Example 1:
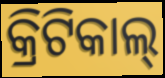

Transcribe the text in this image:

କ୍ରିଟିକାଲ୍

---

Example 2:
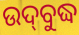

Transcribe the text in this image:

ଉଦ୍‌ବୁଦ୍ଧ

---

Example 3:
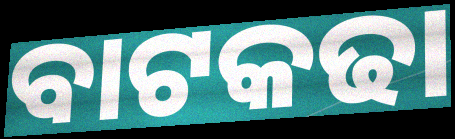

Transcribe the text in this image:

ବାଟକଢା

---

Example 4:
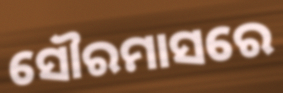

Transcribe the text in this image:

ସୌରମାସରେ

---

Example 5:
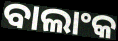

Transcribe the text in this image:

ବାଲାଂକ